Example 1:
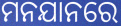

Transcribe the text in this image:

ମନଯାନରେ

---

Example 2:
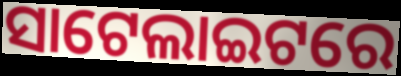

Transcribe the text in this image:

ସାଟେଲାଇଟରେ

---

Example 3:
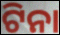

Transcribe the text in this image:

ଟିନା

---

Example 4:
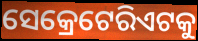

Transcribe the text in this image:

ସେକ୍ରେଟେରିଏଟକୁ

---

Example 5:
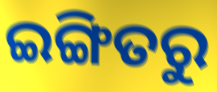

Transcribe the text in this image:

ଇଙ୍ଗିତରୁ